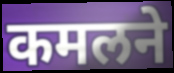
कमलने